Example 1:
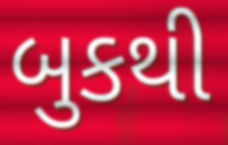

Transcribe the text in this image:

બુકથી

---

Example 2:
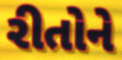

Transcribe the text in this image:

રીતોને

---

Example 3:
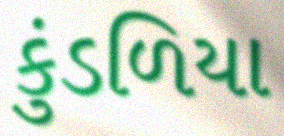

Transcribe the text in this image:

કુંડળિયા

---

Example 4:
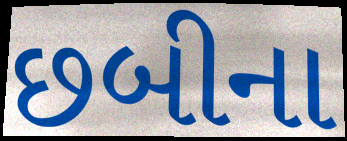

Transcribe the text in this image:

છબીના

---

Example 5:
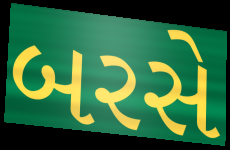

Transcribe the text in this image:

બરસે